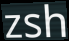
zsh